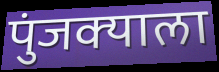
पुंजक्याला